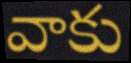
వాకు